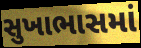
સુખાભાસમાં